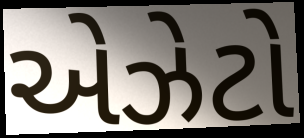
એઝેટો